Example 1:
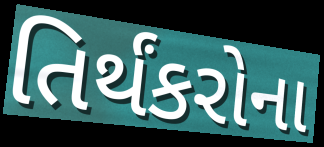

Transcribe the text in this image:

તિર્થંકરોના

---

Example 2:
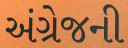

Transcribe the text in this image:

અંગ્રેજની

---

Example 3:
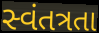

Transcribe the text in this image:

સ્વંતત્રતા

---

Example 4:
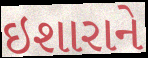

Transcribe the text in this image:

ઇશારાને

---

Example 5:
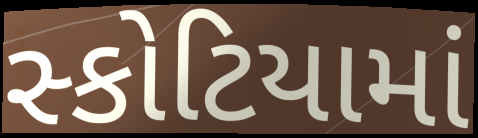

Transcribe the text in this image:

સ્કોટિયામાં